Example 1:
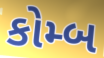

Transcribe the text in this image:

કોમ્બ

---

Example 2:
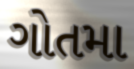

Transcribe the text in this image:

ગોતમા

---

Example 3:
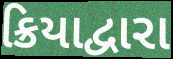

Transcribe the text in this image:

ક્રિયાદ્વારા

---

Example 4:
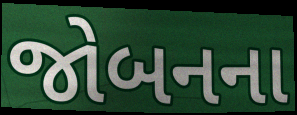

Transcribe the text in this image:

જોબનના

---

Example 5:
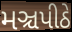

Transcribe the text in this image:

મઞ્ચપીઠે